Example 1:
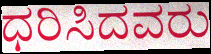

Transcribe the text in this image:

ಧರಿಸಿದವರು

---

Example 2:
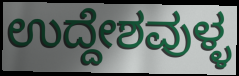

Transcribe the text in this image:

ಉದ್ದೇಶವುಳ್ಳ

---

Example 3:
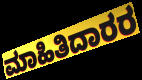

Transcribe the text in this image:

ಮಾಹಿತಿದಾರರ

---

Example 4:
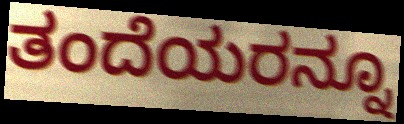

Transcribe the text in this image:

ತಂದೆಯರನ್ನೂ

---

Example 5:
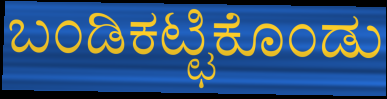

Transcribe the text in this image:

ಬಂಡಿಕಟ್ಟಿಕೊಂಡು